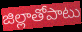
జిల్లాతోపాటు